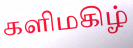
களிமகிழ்